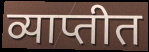
व्याप्तीत